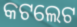
କଟଲେଟ